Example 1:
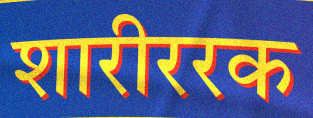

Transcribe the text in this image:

शारीररक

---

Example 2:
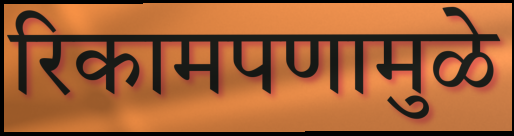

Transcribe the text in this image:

रिकामपणामुळे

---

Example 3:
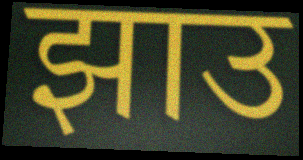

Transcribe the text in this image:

झाउ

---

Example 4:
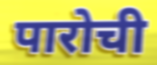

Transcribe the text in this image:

पारोची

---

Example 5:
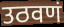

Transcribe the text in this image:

उठवणं